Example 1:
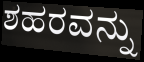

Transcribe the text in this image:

ಶಹರವನ್ನು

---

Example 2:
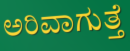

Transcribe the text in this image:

ಅರಿವಾಗುತ್ತೆ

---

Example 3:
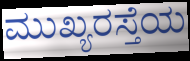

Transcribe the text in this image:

ಮುಖ್ಯರಸ್ತೆಯ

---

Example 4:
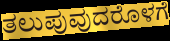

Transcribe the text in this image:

ತಲುಪುವುದರೊಳಗೆ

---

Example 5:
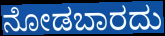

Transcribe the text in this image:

ನೋಡಬಾರದು